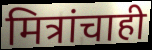
मित्रांचाही